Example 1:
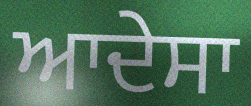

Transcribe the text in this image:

ਆਦੇਸਾ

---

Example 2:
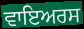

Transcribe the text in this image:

ਵਾਇਅਰਸ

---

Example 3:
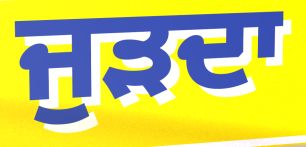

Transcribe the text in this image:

ਜੁੜਦਾ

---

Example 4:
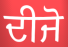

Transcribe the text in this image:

ਦੀਜੋ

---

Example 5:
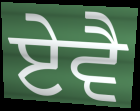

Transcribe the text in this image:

ਏਵੈ